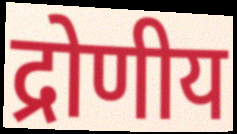
द्रोणीय